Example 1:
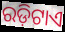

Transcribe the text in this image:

ରଡ଼ିଟାଏ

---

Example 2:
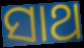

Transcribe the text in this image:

ସାଥ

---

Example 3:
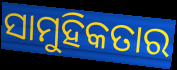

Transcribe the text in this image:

ସାମୁହିକତାର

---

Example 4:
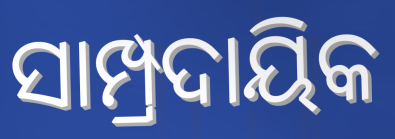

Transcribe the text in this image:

ସାମ୍ପ୍ରଦାୟିକ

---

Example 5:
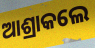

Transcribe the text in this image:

ଆଶ୍ରାକଲେ